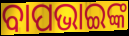
ବାପଭାଇଙ୍କ